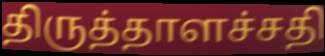
திருத்தாளச்சதி